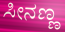
ಸೀನಣ್ಣ